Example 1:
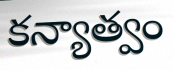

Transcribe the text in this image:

కన్యాత్వం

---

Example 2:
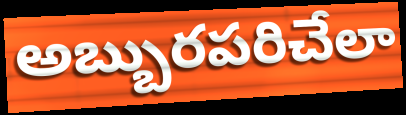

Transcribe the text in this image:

అబ్బురపరిచేలా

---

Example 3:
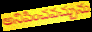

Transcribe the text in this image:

అనిపించవచ్చును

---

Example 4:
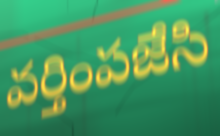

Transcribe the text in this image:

వర్తింపజేసి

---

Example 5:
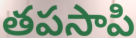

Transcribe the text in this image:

తపసాపి